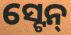
ସ୍ଟେନ୍